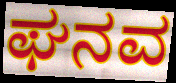
ಘನವ